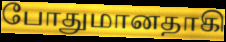
போதுமானதாகி